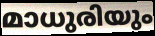
മാധുരിയും